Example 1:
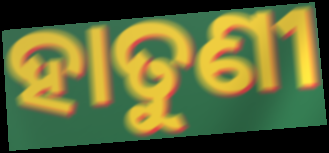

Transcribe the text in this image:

ହାତୁଣୀ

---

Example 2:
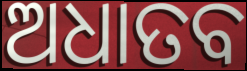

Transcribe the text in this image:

ଅଧାତବ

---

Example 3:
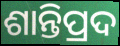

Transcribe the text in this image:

ଶାନ୍ତିପ୍ରଦ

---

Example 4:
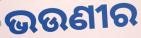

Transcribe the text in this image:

ଭଉଣୀର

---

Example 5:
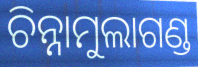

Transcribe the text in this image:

ଚିନ୍ନାମୁଲାଗଣ୍ଡ